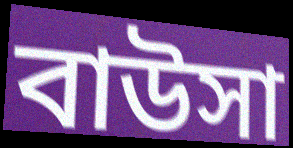
বাউসা